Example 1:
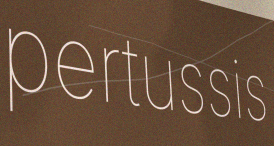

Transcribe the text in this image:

pertussis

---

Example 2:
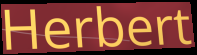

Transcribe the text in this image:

Herbert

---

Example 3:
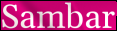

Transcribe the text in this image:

Sambar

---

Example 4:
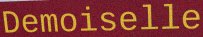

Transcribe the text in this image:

Demoiselle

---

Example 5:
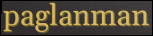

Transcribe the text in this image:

paglanman